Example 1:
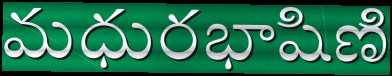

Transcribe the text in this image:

మధురభాషిణి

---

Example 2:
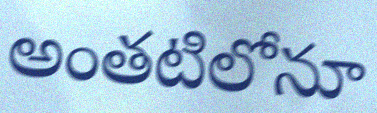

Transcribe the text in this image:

అంతటిలోనూ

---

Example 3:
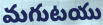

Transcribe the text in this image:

మగుటయు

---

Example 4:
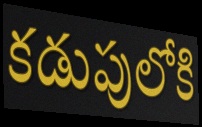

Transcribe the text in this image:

కడుపులోకి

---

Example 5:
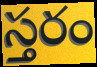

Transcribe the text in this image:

స్తరం